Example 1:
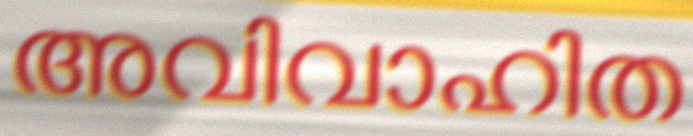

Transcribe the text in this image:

അവിവാഹിത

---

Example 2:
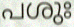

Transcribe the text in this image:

പശുഃ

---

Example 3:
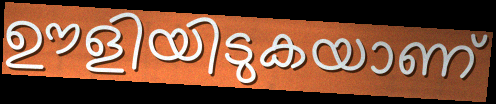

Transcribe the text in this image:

ഊളിയിടുകയാണ്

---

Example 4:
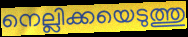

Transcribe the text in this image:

നെല്ലിക്കയെടുത്തു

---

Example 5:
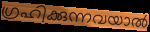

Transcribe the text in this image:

ഗ്രഹിക്കുന്നവയാൽ